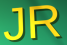
JR